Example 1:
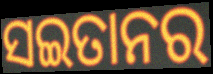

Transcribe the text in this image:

ସଇତାନର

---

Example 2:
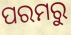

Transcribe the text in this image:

ପରମରୁ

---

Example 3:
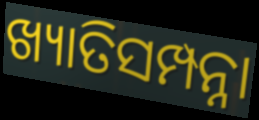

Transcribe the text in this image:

ଖ୍ୟାତିସମ୍ପନ୍ନା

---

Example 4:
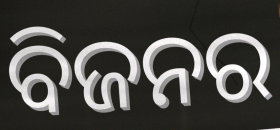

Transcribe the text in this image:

ବିଜନର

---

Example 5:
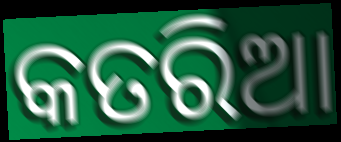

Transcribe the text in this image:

କତରିଆ